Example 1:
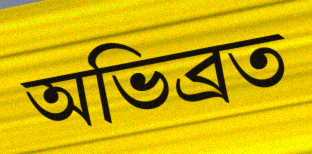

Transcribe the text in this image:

অভিব্রত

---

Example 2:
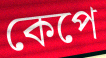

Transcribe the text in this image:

কেপে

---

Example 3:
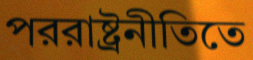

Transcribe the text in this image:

পররাষ্ট্রনীতিতে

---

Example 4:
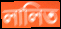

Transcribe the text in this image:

লালিত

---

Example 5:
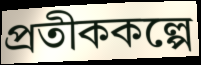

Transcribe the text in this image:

প্রতীককল্পে